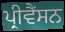
ਪ੍ਰੀਵੈਂਸਨ